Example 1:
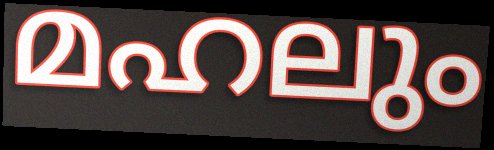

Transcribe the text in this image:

മഹലും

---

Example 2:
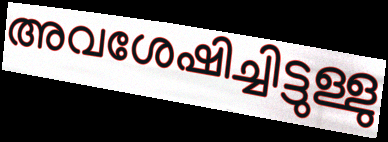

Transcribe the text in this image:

അവശേഷിച്ചിട്ടുള്ളു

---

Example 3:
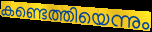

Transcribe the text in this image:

കണ്ടെത്തിയെന്നും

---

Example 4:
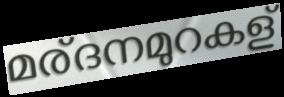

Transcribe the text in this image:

മര്ദനമുറകള്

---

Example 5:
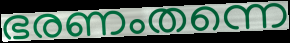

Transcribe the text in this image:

ഭരണംതന്നെ